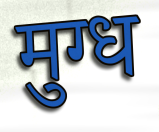
मुग्ध